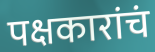
पक्षकारांचं